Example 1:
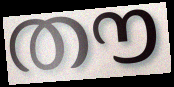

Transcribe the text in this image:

തൗ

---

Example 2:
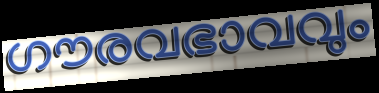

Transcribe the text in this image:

ഗൗരവഭാവവും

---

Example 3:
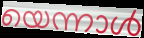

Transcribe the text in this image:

യെന്നാൾ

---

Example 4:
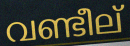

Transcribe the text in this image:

വണ്ടീല്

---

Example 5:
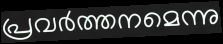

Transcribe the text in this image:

പ്രവർത്തനമെന്നു